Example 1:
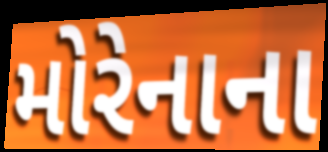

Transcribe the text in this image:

મોરેનાના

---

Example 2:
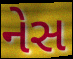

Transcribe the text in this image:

નેસ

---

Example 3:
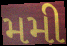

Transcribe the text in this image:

મમી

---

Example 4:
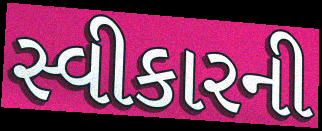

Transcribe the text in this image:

સ્વીકારની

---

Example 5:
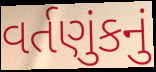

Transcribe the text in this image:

વર્તણુંકનું